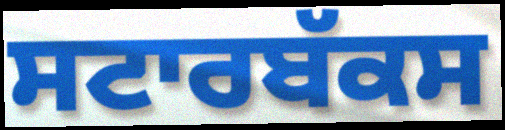
ਸਟਾਰਬੱਕਸ